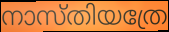
നാസ്തിയത്രേ